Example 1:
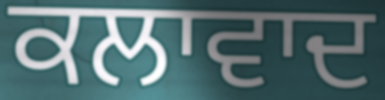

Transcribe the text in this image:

ਕਲਾਵਾਦ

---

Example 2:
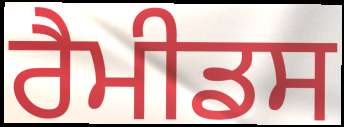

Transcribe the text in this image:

ਰੈਮੀਡਸ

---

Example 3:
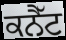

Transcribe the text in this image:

ਕਨੈੱਟ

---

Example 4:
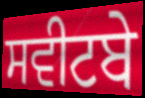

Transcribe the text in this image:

ਸਵੀਟਬੇ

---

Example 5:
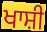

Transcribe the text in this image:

ਖਾਸ਼ੀ